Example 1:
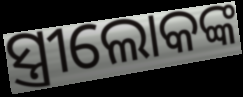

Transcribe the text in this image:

ସ୍ତ୍ରୀଲୋକଙ୍କ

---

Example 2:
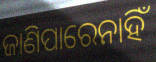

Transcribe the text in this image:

ଜାଣିପାରେନାହିଁ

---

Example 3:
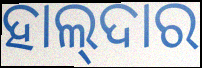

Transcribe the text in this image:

ହାଲ୍‌ଦାର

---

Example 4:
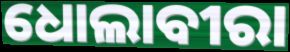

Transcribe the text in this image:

ଧୋଲାବୀରା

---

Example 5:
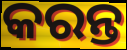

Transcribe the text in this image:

କରନ୍ତ